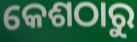
କେଶଠାରୁ